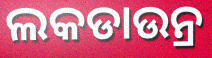
ଲକଡାଉନ୍ର